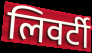
लिवर्टी